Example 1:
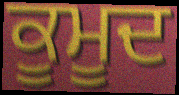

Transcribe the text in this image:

ਕੂਮੂਦ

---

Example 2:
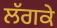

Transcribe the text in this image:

ਲੱਗਕੇ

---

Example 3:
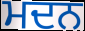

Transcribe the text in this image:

ਮਦਨ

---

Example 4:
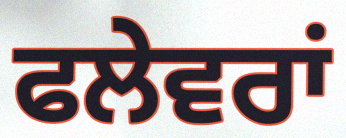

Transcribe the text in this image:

ਫਲੇਵਰਾਂ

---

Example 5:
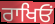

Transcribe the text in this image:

ਰਾਖਿਓਂ